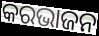
କରଭାଜନ